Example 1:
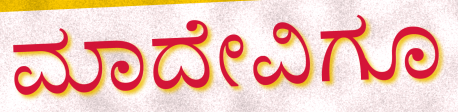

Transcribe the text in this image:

ಮಾದೇವಿಗೂ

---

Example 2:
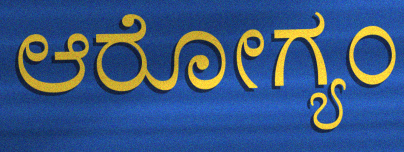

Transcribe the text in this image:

ಆರೋಗ್ಯಂ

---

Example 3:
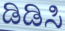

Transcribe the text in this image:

ಡಿಡಿಸಿ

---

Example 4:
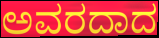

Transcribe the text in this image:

ಅವರದಾದ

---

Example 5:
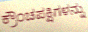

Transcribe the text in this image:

ಕ್ರೌಂಚಪಕ್ಷಿಗಳನ್ನು